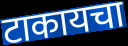
टाकायचा